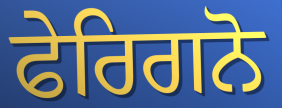
ਫੇਰਿਗਨੋ